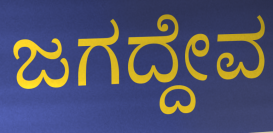
ಜಗದ್ದೇವ